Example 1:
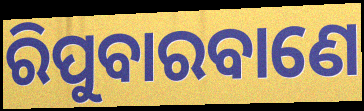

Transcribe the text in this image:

ରିପୁବାରବାଣେ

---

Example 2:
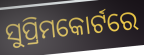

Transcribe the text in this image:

ସୁପ୍ରିମକୋର୍ଟରେ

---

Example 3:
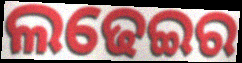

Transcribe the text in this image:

ଲଢେଇର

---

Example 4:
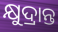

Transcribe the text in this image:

କ୍ଷୁଦ୍ରାନ୍ତ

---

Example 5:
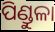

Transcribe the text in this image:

ପିଣ୍ଡୁଳା